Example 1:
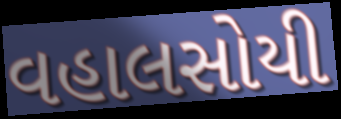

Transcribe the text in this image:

વહાલસોયી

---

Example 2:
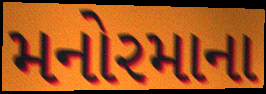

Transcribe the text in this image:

મનોરમાના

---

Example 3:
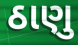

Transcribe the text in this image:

ઠાણુ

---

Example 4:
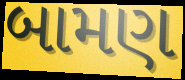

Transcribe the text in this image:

બામણ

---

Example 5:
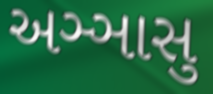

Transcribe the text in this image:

અઞ્ઞાસુ